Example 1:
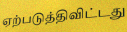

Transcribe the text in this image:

ஏற்படுத்திவிட்டது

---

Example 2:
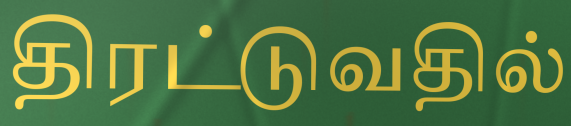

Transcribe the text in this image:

திரட்டுவதில்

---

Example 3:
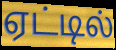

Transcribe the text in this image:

ஏட்டில்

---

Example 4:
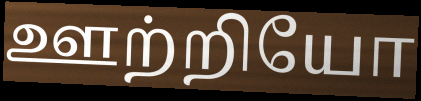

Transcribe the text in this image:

ஊற்றியோ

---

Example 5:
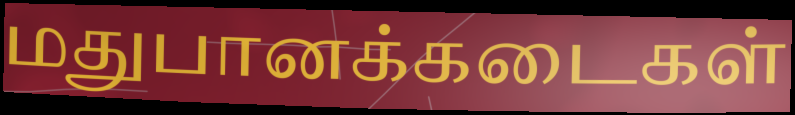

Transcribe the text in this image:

மதுபானக்கடைகள்